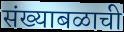
संख्याबळाची